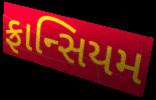
ફ્રાન્સિયમ